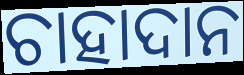
ଚାହାଦାନ